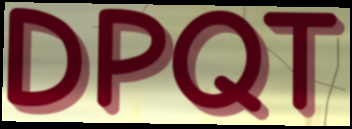
DPQT